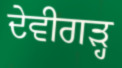
ਦੇਵੀਗੜ੍ਹ